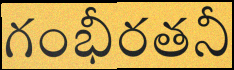
గంభీరతనీ